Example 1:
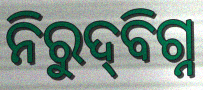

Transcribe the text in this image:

ନିରୁଦ୍‌ବିଗ୍ନ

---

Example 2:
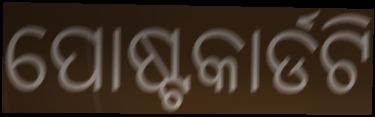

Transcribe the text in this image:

ପୋଷ୍ଟକାର୍ଡଟି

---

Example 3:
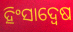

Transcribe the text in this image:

ହିଂସାଦ୍ୱେଷ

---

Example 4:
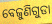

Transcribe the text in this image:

ବେଜୁଣିଗୁଡା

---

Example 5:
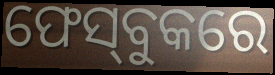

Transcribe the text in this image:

ଫେସ୍‌ବୁକରେ